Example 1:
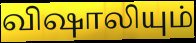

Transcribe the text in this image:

விஷாலியும்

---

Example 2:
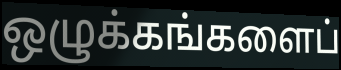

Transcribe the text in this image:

ஒழுக்கங்களைப்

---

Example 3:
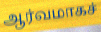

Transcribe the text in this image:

ஆர்வமாகச்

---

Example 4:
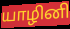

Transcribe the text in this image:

யாழினி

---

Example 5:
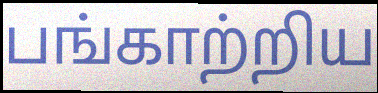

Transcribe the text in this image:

பங்காற்றிய